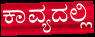
ಕಾವ್ಯದಲ್ಲಿ